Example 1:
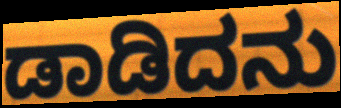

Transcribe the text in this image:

ಡಾಡಿದನು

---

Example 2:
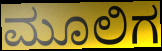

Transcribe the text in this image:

ಮೂಲಿಗ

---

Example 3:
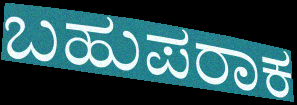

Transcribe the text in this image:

ಬಹುಪರಾಕ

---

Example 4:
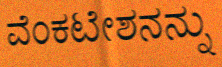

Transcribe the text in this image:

ವೆಂಕಟೇಶನನ್ನು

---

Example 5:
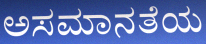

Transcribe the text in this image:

ಅಸಮಾನತೆಯ